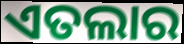
ଏତଲାର